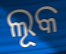
ଲୂକ